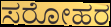
ಸರೋಹರ